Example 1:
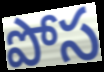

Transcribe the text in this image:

పోస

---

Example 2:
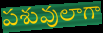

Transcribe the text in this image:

పశువులాగా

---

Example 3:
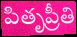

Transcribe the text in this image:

పితృప్రీతి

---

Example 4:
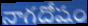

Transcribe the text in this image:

నాగదోషం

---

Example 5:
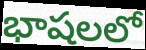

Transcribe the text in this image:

భాషలలో